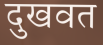
दुखवत